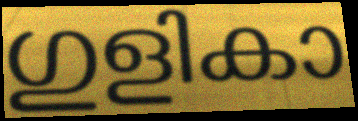
ഗുളികാ